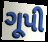
ગૂપી